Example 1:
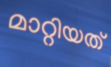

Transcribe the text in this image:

മാറ്റിയത്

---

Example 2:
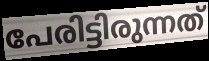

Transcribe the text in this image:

പേരിട്ടിരുന്നത്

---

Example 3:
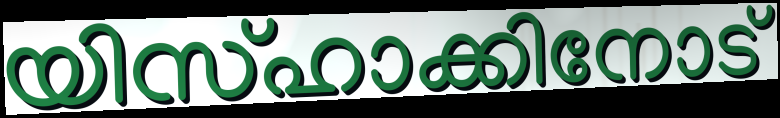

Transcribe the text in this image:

യിസ്ഹാക്കിനോട്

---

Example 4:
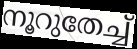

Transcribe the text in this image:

നൂറുതേച്ച്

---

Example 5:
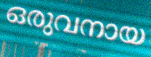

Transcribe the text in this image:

ഒരുവനായ